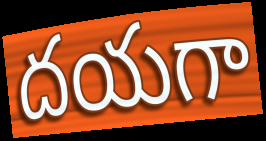
దయగా